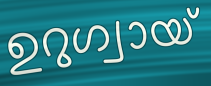
ഉറുഗ്വായ്